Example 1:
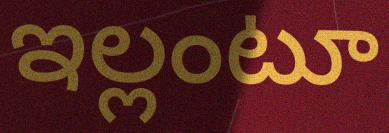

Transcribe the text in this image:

ఇల్లంటూ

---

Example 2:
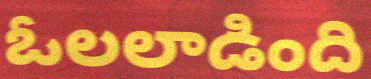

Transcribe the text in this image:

ఓలలాడింది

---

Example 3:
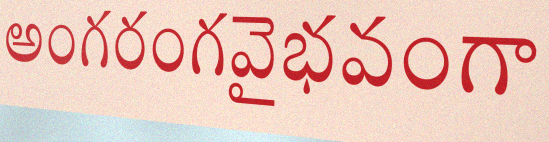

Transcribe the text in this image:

అంగరంగవైభవంగా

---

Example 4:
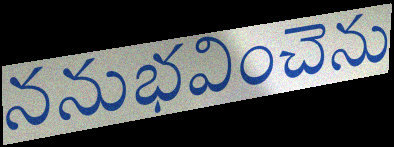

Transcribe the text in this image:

ననుభవించెను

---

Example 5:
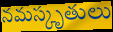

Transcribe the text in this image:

నమస్కృతులు